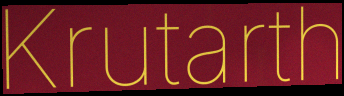
Krutarth